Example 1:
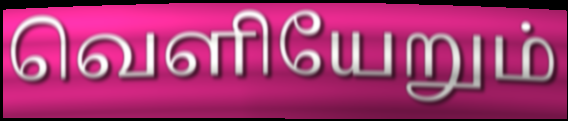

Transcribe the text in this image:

வெளியேறும்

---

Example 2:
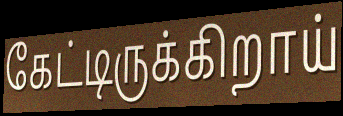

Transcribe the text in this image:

கேட்டிருக்கிறாய்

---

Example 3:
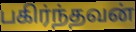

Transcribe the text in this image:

பகிர்ந்தவன்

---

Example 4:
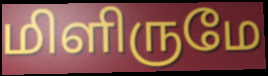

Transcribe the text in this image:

மிளிருமே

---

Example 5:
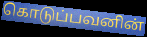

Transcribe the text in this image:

கொடுப்பவனின்